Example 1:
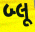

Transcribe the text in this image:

બ્લૂ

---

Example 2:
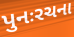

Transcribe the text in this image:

પુનઃરચના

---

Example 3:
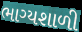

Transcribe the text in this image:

ભાગ્યશાળી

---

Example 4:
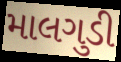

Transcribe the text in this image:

માલગુડી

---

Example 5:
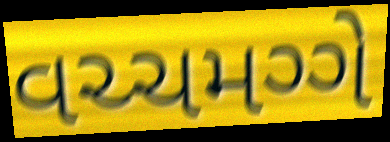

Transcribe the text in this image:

વચ્ચમગ્ગે